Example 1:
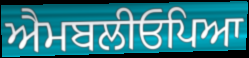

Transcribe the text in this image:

ਐਮਬਲੀਓਪਿਆ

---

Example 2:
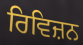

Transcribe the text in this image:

ਰਿਵਿਜ਼ਨ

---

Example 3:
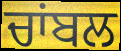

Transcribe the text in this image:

ਚਾਂਬਲ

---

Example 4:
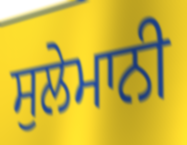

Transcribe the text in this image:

ਸੁਲੇਮਾਨੀ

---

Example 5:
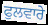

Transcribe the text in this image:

ਫੁਲਵਾਰੇ